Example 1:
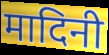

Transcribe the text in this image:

मादिनी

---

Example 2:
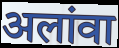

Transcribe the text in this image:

अलांवा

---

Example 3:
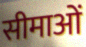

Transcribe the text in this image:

सीमाओं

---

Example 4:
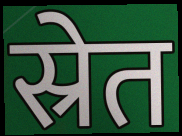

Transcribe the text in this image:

स्रेत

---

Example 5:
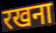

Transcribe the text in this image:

रखना